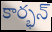
కార్భన్